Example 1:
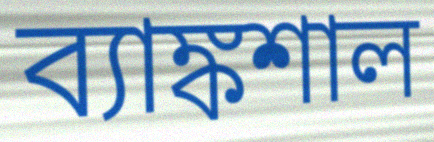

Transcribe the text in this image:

ব্যাঙ্কশাল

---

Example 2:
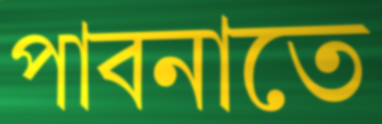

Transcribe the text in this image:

পাবনাতে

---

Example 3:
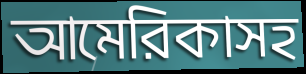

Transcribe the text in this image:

আমেরিকাসহ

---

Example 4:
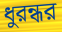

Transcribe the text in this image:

ধুরন্ধর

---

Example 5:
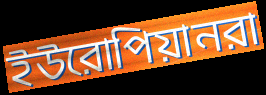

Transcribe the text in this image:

ইউরোপিয়ানরা